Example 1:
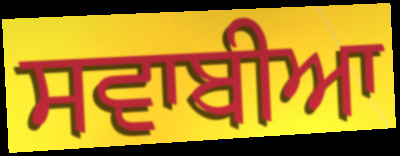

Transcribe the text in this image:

ਸਵਾਬੀਆ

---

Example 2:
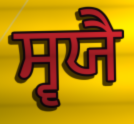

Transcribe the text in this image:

ਸ੍ਵਯੈ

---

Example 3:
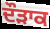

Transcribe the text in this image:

ਦੌੜਾਕ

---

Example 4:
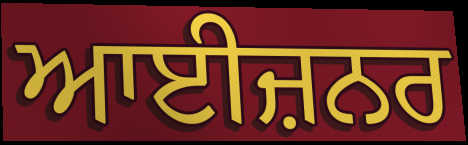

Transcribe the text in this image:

ਆਈਜ਼ਨਰ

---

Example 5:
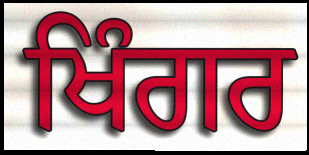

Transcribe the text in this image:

ਖਿੰਗਰ